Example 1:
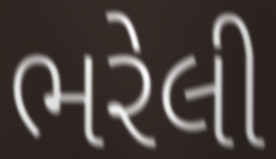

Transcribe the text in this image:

ભરેલી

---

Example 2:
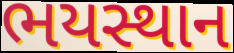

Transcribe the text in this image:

ભયસ્થાન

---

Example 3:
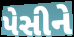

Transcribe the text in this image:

પેસીને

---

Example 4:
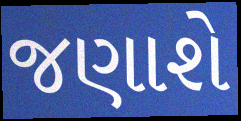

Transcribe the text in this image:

જણાશે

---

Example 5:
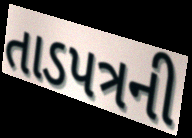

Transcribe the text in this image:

તાડપત્રની